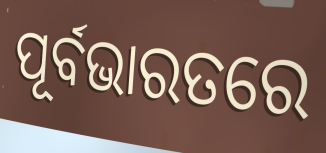
ପୂର୍ବଭାରତରେ